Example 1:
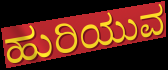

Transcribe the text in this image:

ಹುರಿಯುವ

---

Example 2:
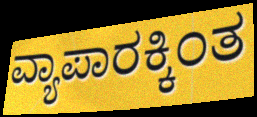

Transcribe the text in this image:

ವ್ಯಾಪಾರಕ್ಕಿಂತ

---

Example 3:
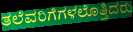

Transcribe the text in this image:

ತಲೆವರಿಗೆಗಳಲೊತ್ತಿದರು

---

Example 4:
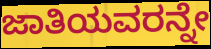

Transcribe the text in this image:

ಜಾತಿಯವರನ್ನೇ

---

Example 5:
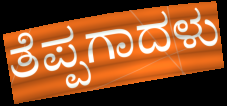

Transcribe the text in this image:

ತೆಪ್ಪಗಾದಳು